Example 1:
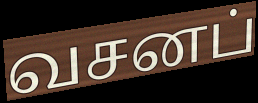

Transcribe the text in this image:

வசனப்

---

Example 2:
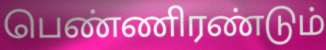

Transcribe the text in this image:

பெண்ணிரண்டும்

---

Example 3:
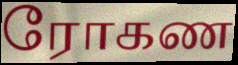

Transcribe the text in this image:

ரோகண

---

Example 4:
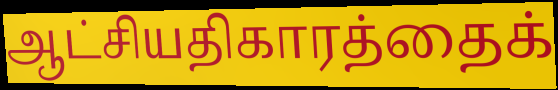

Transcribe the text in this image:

ஆட்சியதிகாரத்தைக்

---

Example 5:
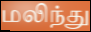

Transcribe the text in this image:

மலிந்து